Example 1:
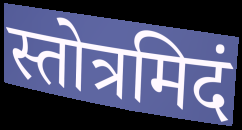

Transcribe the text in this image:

स्तोत्रमिदं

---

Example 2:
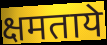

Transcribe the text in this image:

क्षमताये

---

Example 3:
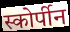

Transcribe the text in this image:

स्कोर्पीन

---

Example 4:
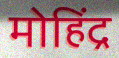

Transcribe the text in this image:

मोहिंद्र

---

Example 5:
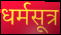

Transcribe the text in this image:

धर्मसूत्र